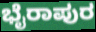
ಭೈರಾಪುರ